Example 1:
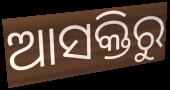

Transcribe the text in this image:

ଆସକ୍ତିରୁ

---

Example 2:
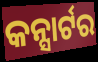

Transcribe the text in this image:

କନ୍ସାର୍ଟର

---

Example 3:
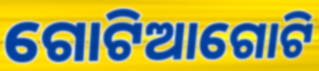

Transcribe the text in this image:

ଗୋଟିଆଗୋଟି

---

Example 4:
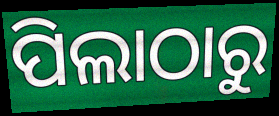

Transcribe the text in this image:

ପିଲାଠାରୁ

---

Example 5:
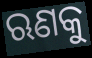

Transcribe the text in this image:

ଋଣକୁ